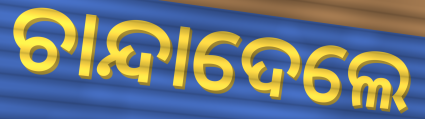
ଚାନ୍ଦାଦେଲେ